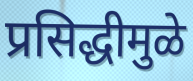
प्रसिद्धीमुळे